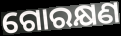
ଗୋରକ୍ଷଣ